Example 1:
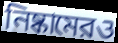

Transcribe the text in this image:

নিষ্কামেরও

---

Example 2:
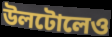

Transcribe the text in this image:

উলটোলেও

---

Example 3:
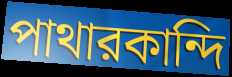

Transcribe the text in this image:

পাথারকান্দি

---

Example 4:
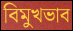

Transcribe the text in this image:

বিমুখভাব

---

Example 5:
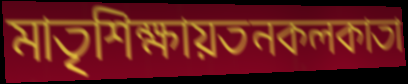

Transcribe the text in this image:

মাতৃশিক্ষায়তনকলকাতা